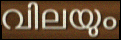
വിലയും